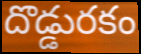
దొడ్డురకం